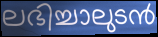
ലഭിച്ചാലുടൻ